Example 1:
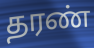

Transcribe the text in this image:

தரண்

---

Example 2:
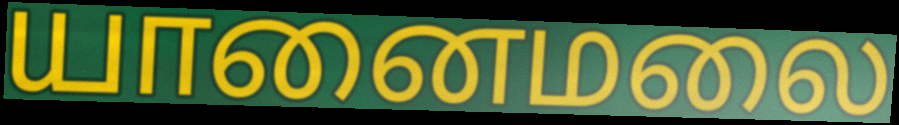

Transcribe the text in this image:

யானைமலை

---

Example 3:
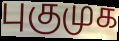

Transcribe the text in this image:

புகுமுக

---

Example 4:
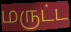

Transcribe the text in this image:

மருட்ட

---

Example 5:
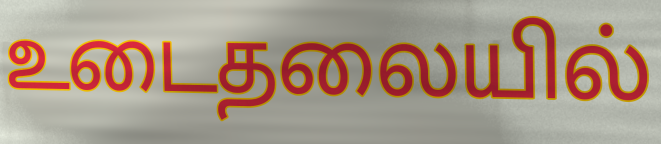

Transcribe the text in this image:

உடைதலையில்